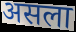
असला